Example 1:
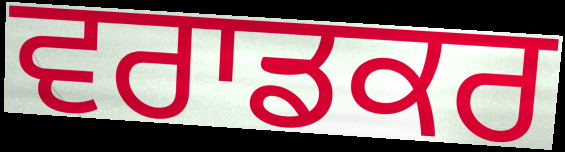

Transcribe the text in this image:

ਵਰਾਡਕਰ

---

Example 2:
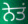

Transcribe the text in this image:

ਨੇਤਂ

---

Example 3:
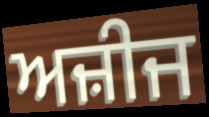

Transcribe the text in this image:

ਅਜ਼ੀਜ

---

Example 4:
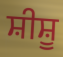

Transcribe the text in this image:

ਸ਼ੀਸ਼ੂ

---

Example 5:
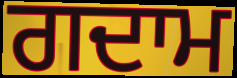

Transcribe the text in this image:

ਗਦਾਮ